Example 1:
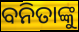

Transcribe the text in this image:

ବନିତାଙ୍କୁ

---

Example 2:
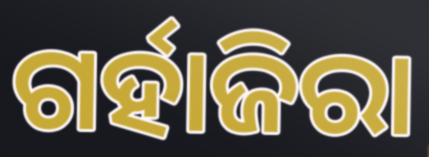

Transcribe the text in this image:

ଗର୍ହାଜିରା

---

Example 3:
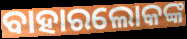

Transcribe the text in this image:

ବାହାରଲୋକଙ୍କ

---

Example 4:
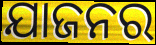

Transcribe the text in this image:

ଯାଜନର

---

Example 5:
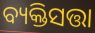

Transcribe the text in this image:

ବ୍ୟକ୍ତିସତ୍ତା